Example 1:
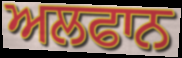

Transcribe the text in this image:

ਅਲਫਾਨ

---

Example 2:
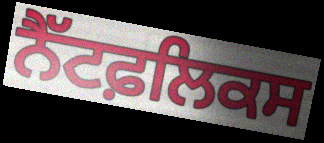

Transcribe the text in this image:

ਨੈੱਟਫ਼ਲਿਕਸ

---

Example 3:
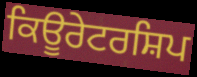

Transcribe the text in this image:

ਕਿਊਰੇਟਰਸ਼ਿਪ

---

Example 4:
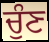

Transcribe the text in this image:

ਚੁੰਣ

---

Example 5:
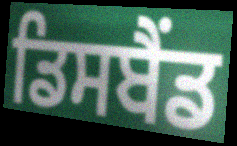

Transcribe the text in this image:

ਡਿਸਬੈਂਡ